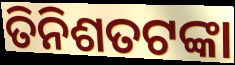
ତିନିଶତଟଙ୍କା